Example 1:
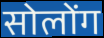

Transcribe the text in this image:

सोलोंग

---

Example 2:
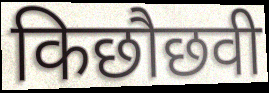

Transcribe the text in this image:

किछौछवी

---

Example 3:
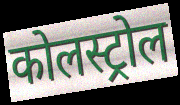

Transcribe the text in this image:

कोलस्ट्रोल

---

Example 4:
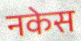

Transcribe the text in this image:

नकेस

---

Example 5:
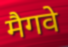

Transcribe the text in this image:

मैगवे